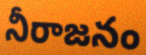
నీరాజనం